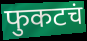
फुकटचं